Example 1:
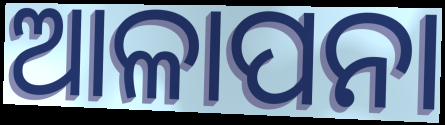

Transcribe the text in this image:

ଆଳାପନା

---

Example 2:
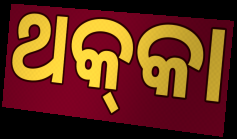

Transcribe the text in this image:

ଥକ୍‍କା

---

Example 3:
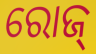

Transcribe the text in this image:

ରୋଜ୍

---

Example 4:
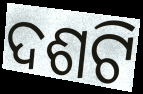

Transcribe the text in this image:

ଦଶଟି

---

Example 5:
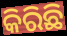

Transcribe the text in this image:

କିରିଛି